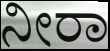
ನೀರಾ